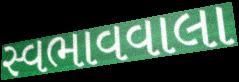
સ્વભાવવાલા